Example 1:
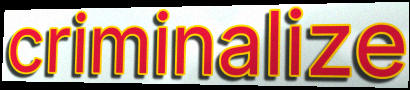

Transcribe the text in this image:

criminalize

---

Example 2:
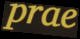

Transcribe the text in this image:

prae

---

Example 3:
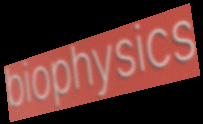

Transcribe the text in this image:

biophysics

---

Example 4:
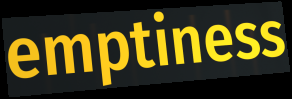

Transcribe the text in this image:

emptiness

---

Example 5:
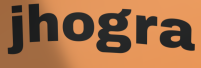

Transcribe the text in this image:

jhogra